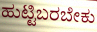
ಹುಟ್ಟಿಬರಬೇಕು